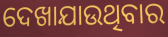
ଦେଖାଯାଉଥିବାର